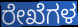
ರೇಖೆಗಳ